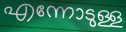
എന്നോടുള്ള